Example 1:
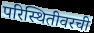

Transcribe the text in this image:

परिस्थितीवरची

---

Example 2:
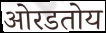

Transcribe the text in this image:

ओरडतोय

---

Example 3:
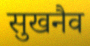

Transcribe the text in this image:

सुखनैव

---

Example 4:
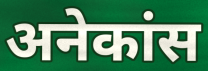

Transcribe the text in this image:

अनेकांस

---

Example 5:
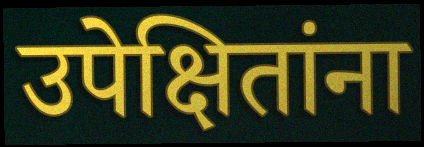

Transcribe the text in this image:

उपेक्षितांना